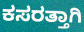
ಕಸರತ್ತಾಗಿ